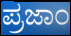
ಪ್ರಜಾಂ